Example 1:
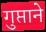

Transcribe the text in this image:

गुप्ताने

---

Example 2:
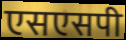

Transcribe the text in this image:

एसएसपी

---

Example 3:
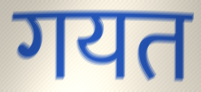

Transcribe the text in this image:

गयत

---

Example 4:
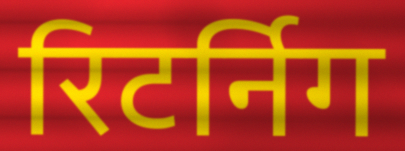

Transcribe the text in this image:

रिटर्निग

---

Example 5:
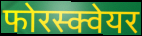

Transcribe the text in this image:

फोरस्क्वेयर